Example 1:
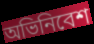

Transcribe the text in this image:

অভিনিবেশ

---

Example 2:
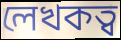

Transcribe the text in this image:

লেখকত্ব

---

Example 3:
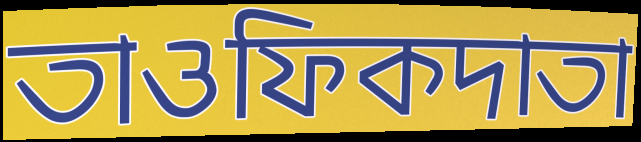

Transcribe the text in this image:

তাওফিকদাতা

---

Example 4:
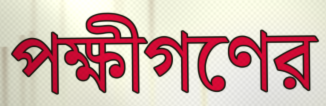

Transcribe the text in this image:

পক্ষীগণের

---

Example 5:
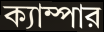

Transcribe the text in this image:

ক্যাম্পার